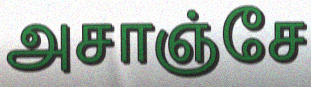
அசாஞ்சே